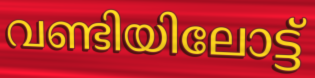
വണ്ടിയിലോട്ട്